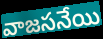
వాజసనేయి